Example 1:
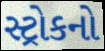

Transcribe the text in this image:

સ્ટ્રોકનો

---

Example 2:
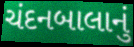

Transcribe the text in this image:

ચંદનબાલાનું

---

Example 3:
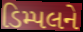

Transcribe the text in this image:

ડિમ્પલને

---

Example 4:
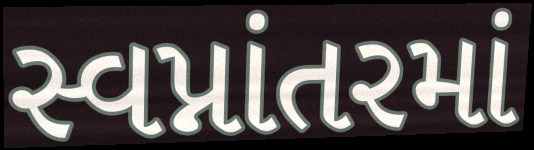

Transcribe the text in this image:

સ્વપ્નાંતરમાં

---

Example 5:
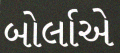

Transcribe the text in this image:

બોર્લાએ